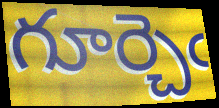
గూర్చెఁ